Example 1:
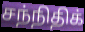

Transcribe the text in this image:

சந்நிதிக்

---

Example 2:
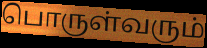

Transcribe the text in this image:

பொருள்வரும்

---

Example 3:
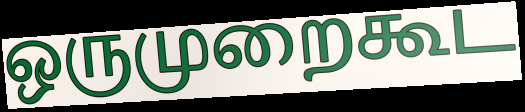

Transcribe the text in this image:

ஒருமுறைகூட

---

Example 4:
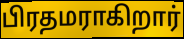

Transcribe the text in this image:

பிரதமராகிறார்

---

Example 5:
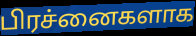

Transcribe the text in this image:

பிரச்னைகளாக